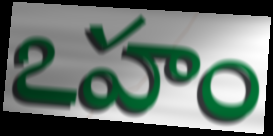
ఽహం